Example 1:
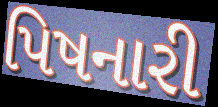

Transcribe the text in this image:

પિષનારી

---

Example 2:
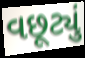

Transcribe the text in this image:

વછૂટ્યું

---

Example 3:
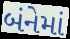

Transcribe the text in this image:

બંનેમાં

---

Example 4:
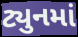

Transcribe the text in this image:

ટ્યુનમાં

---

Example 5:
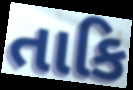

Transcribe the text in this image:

તાકિ